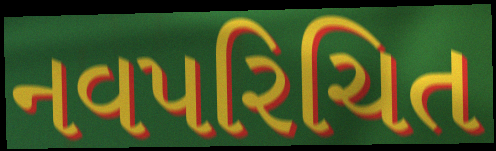
નવપરિચિત